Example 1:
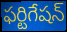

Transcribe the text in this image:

ఫర్టిగేషన్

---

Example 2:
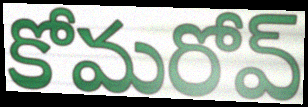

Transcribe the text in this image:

కోమరోవ్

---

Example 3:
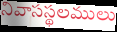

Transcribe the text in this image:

నివాసస్థలములు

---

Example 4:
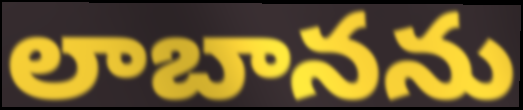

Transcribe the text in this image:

లాబానను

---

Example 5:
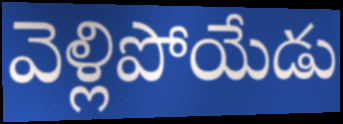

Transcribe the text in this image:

వెళ్లిపోయేడు